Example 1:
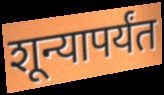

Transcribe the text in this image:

शून्यापर्यंत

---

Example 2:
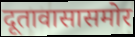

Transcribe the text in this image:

दूतावासासमोर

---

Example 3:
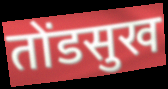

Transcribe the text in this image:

तोंडसुख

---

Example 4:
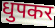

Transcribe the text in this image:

धुपकर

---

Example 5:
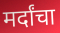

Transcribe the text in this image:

मर्दांचा